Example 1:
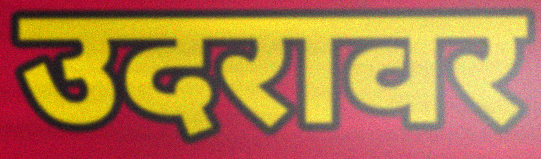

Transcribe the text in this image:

उदरावर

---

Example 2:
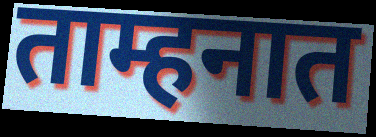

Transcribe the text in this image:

ताम्हनात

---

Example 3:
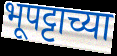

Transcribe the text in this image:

भूपट्टाच्या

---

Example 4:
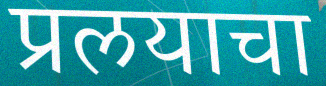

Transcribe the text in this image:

प्रलयाचा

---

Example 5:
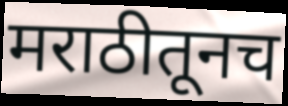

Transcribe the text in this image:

मराठीतूनच